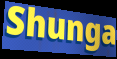
Shunga